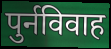
पुर्नविवाह